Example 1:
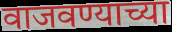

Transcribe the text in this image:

वाजवण्याच्या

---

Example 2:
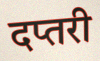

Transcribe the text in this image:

दप्तरी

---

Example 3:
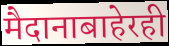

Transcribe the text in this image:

मैदानाबाहेरही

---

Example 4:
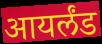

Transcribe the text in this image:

आयर्लंड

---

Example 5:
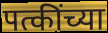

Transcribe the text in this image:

पत्कींच्या